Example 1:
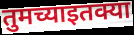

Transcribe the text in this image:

तुमच्याइतक्या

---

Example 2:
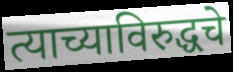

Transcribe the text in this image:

त्याच्याविरुद्धचे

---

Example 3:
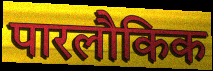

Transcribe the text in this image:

पारलौकिक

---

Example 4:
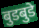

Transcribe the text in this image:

बुडबुडे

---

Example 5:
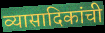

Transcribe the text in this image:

व्यासादिकांची